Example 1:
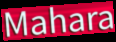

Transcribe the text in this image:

Mahara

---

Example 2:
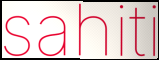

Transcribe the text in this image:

sahiti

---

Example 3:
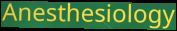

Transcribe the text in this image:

Anesthesiology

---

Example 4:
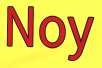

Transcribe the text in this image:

Noy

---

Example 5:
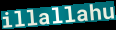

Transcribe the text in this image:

illallahu